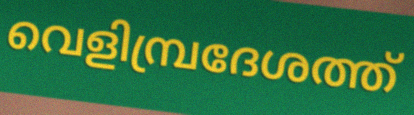
വെളിമ്പ്രദേശത്ത്